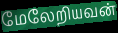
மேலேறியவன்